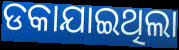
ଡକାଯାଇଥିଲା